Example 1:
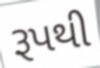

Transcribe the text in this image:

રૂપથી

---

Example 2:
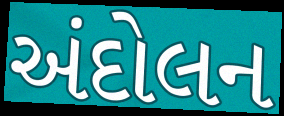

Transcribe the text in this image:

અંદોલન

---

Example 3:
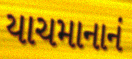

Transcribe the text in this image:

યાચમાનાનં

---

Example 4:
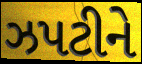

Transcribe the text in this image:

ઝપટીને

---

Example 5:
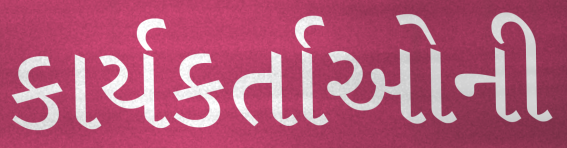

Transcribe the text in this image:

કાર્યકર્તાઓની